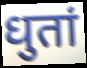
धुतां